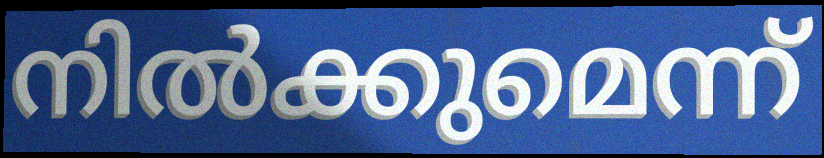
നിൽക്കുമെന്ന്